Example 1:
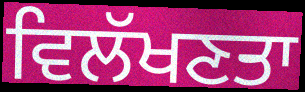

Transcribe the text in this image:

ਵਿਲੱਖਣਤਾ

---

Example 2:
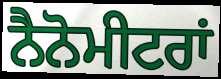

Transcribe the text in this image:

ਨੈਨੋਮੀਟਰਾਂ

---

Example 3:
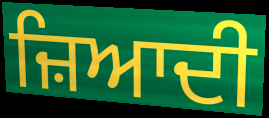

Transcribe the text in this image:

ਜ਼ਿਆਦੀ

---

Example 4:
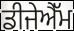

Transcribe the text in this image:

ਡੀਜੇਐੱਮ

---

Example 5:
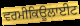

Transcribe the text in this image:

ਵਰਮੀਕਿਊਲਾਈਟ